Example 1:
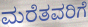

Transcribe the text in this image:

ಮರೆತವರಿಗೆ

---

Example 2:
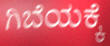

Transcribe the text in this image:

ಗಿಬೆಯಕ್ಕೆ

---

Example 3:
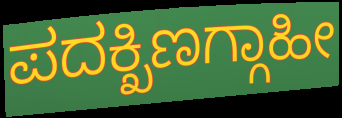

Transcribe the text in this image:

ಪದಕ್ಖಿಣಗ್ಗಾಹೀ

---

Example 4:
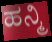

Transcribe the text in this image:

ಹನ್ಮಿ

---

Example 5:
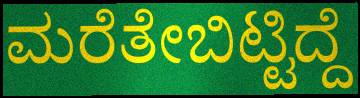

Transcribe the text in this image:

ಮರೆತೇಬಿಟ್ಟಿದ್ದೆ